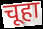
चूहा